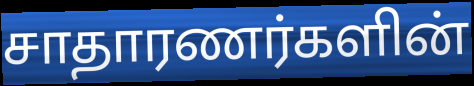
சாதாரணர்களின்